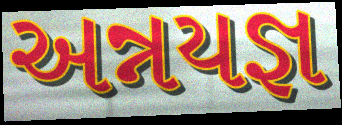
અન્નયજ્ઞ